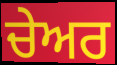
ਚੇਅਰ